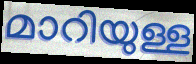
മാറിയുള്ള